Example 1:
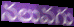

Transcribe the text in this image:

నలువగు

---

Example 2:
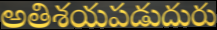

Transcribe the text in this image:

అతిశయపడుదురు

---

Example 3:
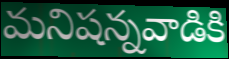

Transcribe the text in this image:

మనిషన్నవాడికి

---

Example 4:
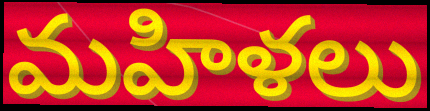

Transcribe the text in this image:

మహిళలు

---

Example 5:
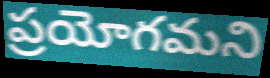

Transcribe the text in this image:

ప్రయోగమని